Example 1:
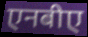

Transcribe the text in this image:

एनबीए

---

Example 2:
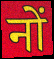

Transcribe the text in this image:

नों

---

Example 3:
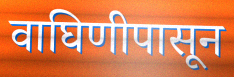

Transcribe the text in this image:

वाघिणीपासून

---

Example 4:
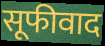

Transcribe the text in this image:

सूफीवाद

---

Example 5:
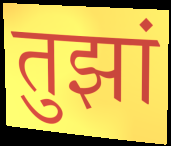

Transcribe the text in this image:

तुझां